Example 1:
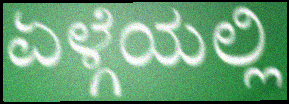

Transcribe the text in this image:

ಏಳ್ಗೆಯಲ್ಲಿ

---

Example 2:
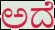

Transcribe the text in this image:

ಅದೆ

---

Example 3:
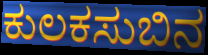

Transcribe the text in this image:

ಕುಲಕಸುಬಿನ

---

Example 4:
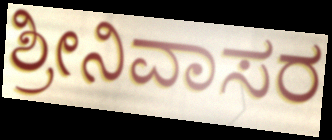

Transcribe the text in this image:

ಶ್ರೀನಿವಾಸರ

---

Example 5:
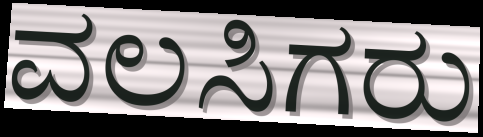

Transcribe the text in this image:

ವಲಸಿಗರು